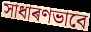
সাধাৰণভাবে